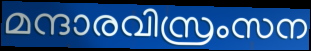
മന്ദാരവിസ്രംസന